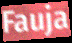
Fauja